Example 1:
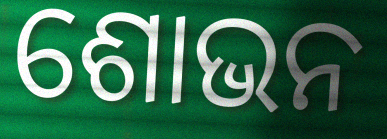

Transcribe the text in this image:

ଶୋଭନ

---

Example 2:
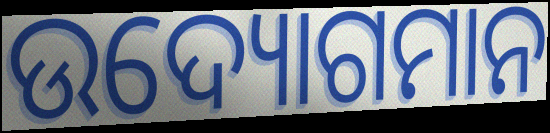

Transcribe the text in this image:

ଉଦ୍ୟୋଗମାନ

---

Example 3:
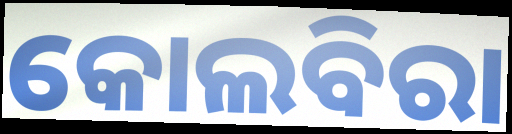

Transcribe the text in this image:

କୋଲବିରା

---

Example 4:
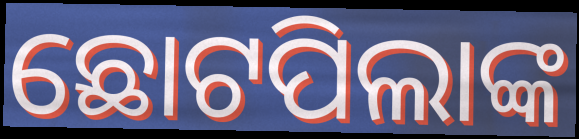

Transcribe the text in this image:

ଛୋଟପିଲାଙ୍କ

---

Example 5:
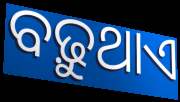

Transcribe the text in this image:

ବଢ଼ୁଥାଏ